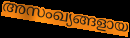
അസംഖ്യങ്ങളായ